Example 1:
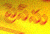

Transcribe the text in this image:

ప్రెస్‌ను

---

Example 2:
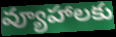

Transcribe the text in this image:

వ్యూహాలకు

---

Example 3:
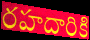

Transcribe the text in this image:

రహదారికి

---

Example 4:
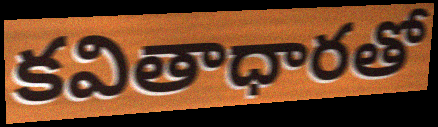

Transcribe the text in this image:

కవితాధారతో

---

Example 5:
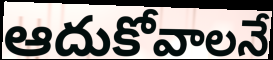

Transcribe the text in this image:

ఆదుకోవాలనే